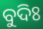
ବୁଦିଃ